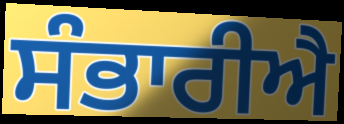
ਸੰਭਾਰੀਐ